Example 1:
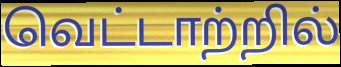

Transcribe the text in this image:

வெட்டாற்றில்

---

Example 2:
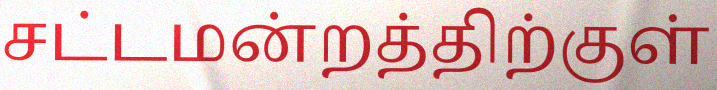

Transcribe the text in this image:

சட்டமன்றத்திற்குள்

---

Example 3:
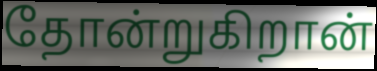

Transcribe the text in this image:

தோன்றுகிறான்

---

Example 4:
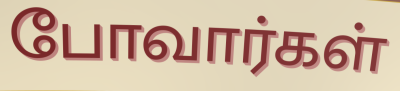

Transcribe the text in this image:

போவார்கள்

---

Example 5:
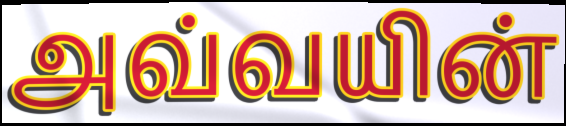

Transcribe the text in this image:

அவ்வயின்